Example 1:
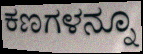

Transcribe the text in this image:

ಕಣಗಳನ್ನೂ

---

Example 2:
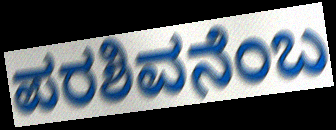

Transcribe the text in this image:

ಪರಶಿವನೆಂಬ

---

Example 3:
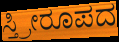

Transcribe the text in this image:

ಸ್ತ್ರೀರೂಪದ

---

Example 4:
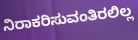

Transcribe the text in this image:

ನಿರಾಕರಿಸುವಂತಿರಲಿಲ್ಲ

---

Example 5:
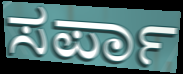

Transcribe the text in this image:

ಸರ್ಪಾ